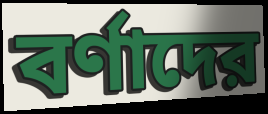
বর্ণাদের